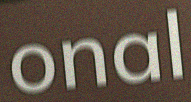
onal